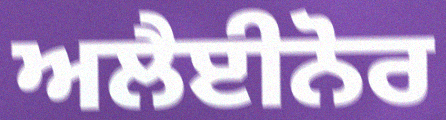
ਅਲੈਈਨੋਰ